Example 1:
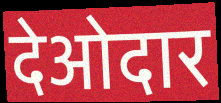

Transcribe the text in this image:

देओदार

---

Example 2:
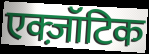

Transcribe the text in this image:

एक्ज़ॉटिक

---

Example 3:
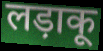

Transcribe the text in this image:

लड़ाकू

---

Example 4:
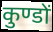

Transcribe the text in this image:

कुण्डों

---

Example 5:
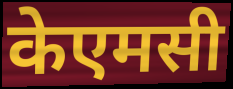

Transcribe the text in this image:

केएमसी